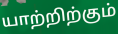
யாற்றிற்கும்